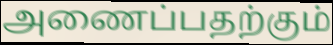
அணைப்பதற்கும்